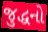
જુદ્ધનો